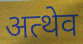
अत्थेव